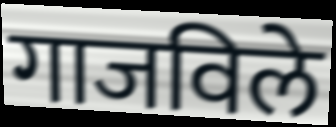
गाजविले